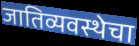
जातिव्यवस्थेचा